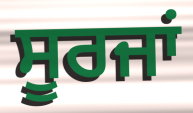
ਸੂਰਜਾਂ